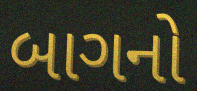
બાગનો